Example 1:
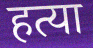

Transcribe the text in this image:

हत्या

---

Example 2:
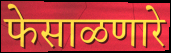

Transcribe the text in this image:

फेसाळणारे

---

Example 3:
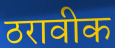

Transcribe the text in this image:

ठरावीक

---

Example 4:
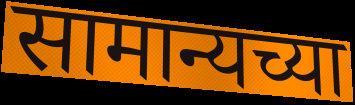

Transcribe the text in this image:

सामान्यच्या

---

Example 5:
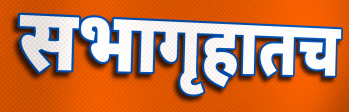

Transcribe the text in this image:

सभागृहातच